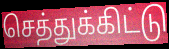
செத்துக்கிட்டு